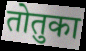
तोतुका